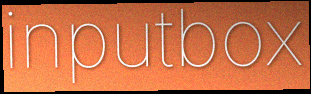
inputbox